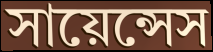
সায়েন্সেস